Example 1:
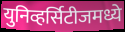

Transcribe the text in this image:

युनिव्हर्सिटीजमध्ये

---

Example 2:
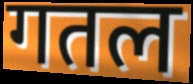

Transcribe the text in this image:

गतल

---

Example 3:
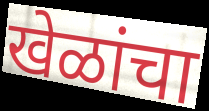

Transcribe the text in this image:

खेळांचा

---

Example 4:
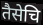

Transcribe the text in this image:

तैसेचि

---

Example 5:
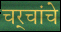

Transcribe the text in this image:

चर्चांचे